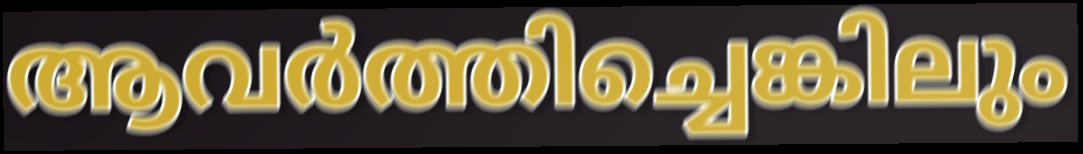
ആവർത്തിച്ചെങ്കിലും